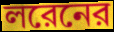
লরেনের